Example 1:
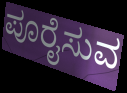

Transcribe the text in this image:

ಪೂರೈಸುವ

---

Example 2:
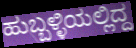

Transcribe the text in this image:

ಹುಬ್ಬಳ್ಳಿಯಲ್ಲಿದ್ದ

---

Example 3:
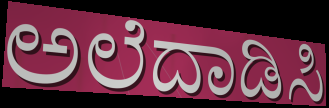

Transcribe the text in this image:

ಅಲೆದಾಡಿಸಿ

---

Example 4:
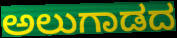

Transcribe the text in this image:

ಅಲುಗಾಡದ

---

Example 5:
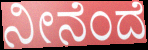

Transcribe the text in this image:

ನೀನೆಂದೆ